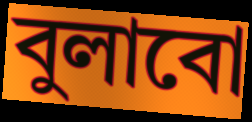
বুলাবো